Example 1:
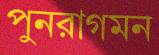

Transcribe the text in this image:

পুনরাগমন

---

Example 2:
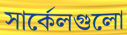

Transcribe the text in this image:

সার্কেলগুলো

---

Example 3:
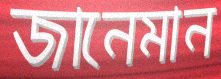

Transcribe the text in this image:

জানেমান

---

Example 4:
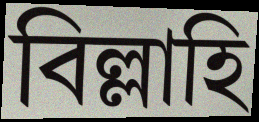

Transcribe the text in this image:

বিল্লাহি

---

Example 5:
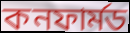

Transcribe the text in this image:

কনফার্মড